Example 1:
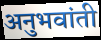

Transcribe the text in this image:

अनुभवांती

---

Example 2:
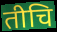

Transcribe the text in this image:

तीचि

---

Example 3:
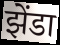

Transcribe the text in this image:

झेंडा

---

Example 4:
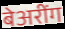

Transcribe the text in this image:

बेअरींग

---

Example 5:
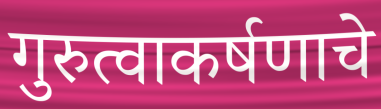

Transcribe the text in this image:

गुरुत्वाकर्षणाचे